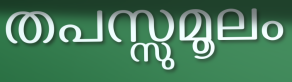
തപസ്സുമൂലം